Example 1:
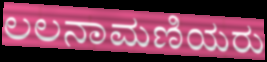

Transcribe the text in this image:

ಲಲನಾಮಣಿಯರು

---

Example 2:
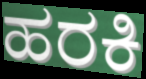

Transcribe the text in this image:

ಹರಕಿ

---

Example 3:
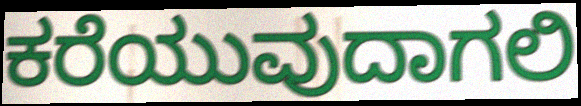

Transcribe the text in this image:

ಕರೆಯುವುದಾಗಲಿ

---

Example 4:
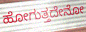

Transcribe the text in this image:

ಹೋಗುತ್ತದೇನೋ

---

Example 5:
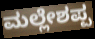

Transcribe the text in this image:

ಮಲ್ಲೇಶಪ್ಪ